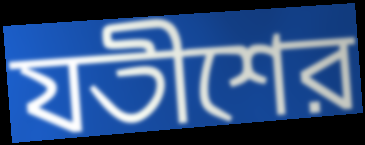
যতীশের